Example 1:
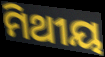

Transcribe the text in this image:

ମିଥୀୟ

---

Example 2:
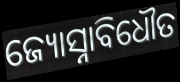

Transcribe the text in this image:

ଜ୍ୟୋସ୍ନାବିଧୌତ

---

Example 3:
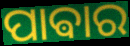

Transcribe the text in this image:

ପାଵାର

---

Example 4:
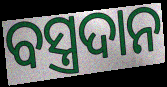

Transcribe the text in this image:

ବସ୍ତ୍ରଦାନ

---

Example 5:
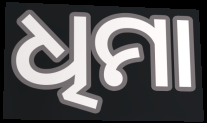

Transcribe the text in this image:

ଧିମା